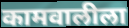
कामवालीला